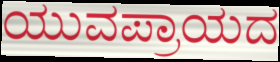
ಯುವಪ್ರಾಯದ